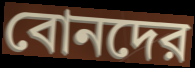
বোনদের